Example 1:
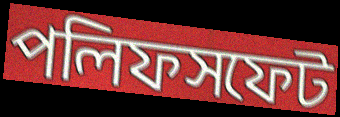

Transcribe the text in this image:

পলিফসফেট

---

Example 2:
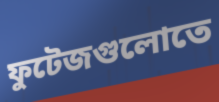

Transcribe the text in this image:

ফুটেজগুলোতে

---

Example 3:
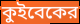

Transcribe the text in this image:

কুইবেকের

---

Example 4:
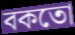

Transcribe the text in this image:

বকতো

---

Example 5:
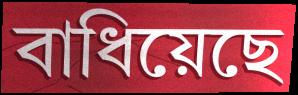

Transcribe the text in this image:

বাধিয়েছে